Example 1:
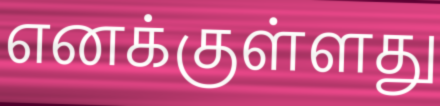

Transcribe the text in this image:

எனக்குள்ளது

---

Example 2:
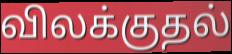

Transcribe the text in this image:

விலக்குதல்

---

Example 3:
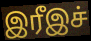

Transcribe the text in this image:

இரீஇச்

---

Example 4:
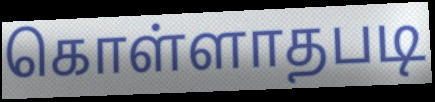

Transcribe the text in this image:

கொள்ளாதபடி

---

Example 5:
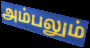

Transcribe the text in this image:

அம்பலும்